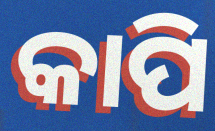
କାପି